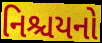
નિશ્ચયનો